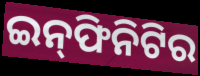
ଇନ୍‌ଫିନିଟିର